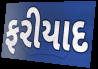
ફરીયાદ